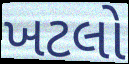
ખટલો